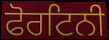
ਫੋਰਟਿਨੀ